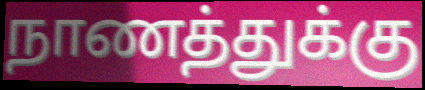
நாணத்துக்கு